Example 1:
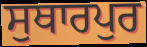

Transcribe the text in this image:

ਸੁਥਾਰਪੁਰ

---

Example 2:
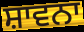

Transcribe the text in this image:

ਸ਼ਾਵਨਾ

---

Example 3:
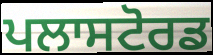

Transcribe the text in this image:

ਪਲਾਸਟੋਰਡ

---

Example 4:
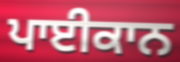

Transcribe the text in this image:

ਪਾਈਕਾਨ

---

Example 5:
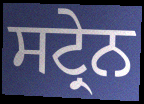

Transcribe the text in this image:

ਸਟ੍ਰੇਨ